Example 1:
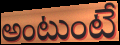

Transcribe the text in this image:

అంటుంటే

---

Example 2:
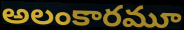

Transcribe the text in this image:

అలంకారమూ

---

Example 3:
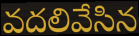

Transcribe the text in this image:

వదలివేసిన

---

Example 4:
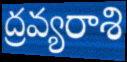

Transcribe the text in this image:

ద్రవ్యరాశి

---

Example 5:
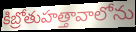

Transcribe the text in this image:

కిబ్రోతుహత్తావాలోను